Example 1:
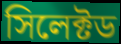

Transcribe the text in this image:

সিলেক্টড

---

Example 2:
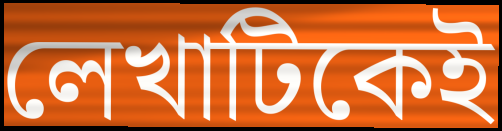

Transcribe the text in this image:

লেখাটিকেই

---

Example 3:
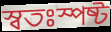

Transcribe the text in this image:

স্বতঃস্পষ্ট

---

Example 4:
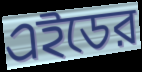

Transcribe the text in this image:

এইডের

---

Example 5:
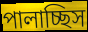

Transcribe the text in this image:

পালাচ্ছিস